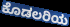
ಕೊಡಲರಿಯ